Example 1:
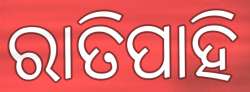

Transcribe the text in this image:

ରାତିପାହି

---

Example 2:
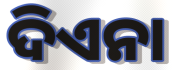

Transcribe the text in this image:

ଦିଏନା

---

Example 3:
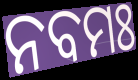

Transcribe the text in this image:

ନବମଃ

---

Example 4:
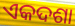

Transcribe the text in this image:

ଏକଦଶା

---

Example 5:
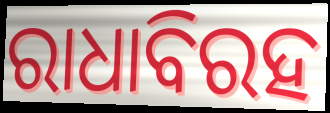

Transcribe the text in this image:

ରାଧାବିରହ